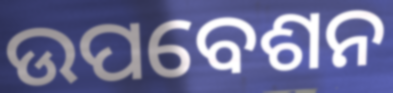
ଉପବେଶନ